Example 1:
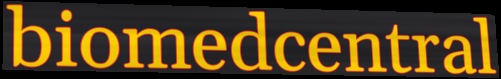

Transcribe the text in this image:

biomedcentral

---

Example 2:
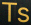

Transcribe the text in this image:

Ts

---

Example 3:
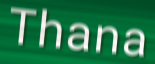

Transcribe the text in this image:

Thana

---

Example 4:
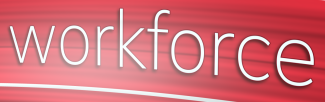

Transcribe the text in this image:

workforce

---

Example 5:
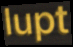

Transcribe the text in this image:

lupt